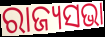
ରାଜ୍ୟସଭା